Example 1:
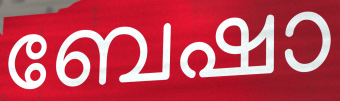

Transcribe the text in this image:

ബേഷാ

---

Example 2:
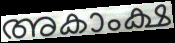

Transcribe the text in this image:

അകാംക്ഷ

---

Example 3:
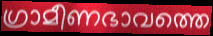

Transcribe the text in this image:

ഗ്രാമീണഭാവത്തെ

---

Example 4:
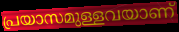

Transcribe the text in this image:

പ്രയാസമുള്ളവയാണ്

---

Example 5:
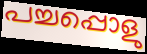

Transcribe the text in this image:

പച്ചപ്പൊളു